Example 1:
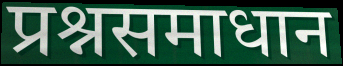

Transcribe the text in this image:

प्रश्नसमाधान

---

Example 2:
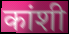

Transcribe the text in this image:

कांशी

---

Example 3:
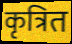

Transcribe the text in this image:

कृत्रित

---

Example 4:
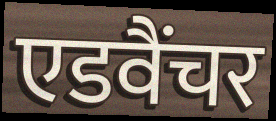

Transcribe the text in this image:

एडवैंचर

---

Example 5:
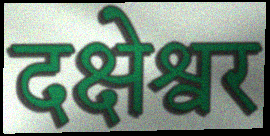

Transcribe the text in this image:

दक्षेश्वर